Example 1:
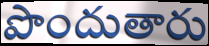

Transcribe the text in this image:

పొందుతారు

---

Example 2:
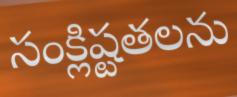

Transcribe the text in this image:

సంక్లిష్టతలను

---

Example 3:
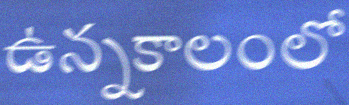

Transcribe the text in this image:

ఉన్నకాలంలో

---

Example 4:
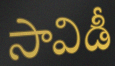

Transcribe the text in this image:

సావిడీ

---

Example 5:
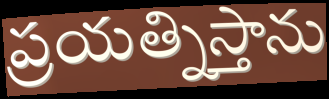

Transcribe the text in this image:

ప్రయత్నిస్తాను